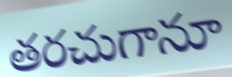
తరచుగానూ